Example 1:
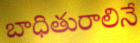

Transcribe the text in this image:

బాధితురాలినే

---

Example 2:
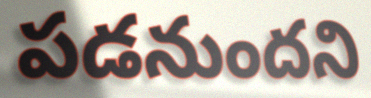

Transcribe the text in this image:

పడనుందని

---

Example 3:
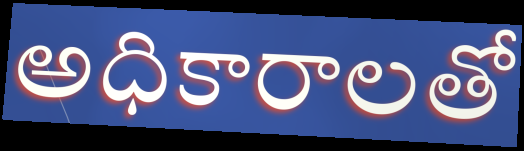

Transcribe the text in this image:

అధికారాలతో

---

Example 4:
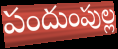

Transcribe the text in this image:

పందుంపుల్ల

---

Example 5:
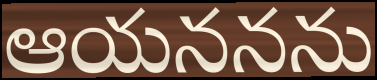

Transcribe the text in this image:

ఆయననను